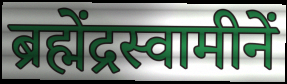
ब्रह्मेंद्रस्वामीनें